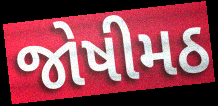
જોષીમઠ